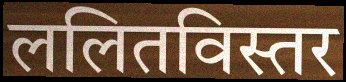
ललितविस्तर